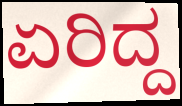
ಏರಿದ್ದ